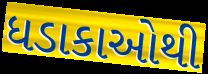
ધડાકાઓથી